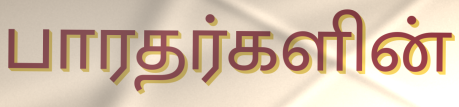
பாரதர்களின்